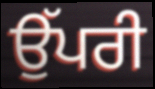
ਉੱਪਰੀ